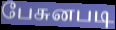
பேசுனபடி